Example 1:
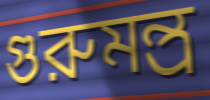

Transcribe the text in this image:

গুরুমন্ত্র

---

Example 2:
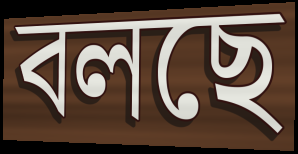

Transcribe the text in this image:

বলছে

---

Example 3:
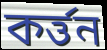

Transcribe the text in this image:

কর্ত্তন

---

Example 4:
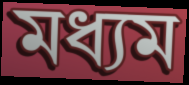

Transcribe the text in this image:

মধ্যম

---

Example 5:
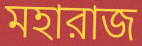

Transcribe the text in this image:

মহারাজ